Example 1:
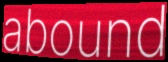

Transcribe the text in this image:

abound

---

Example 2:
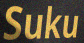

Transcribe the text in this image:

Suku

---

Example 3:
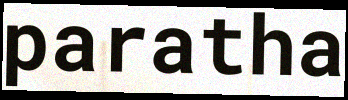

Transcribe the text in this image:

paratha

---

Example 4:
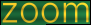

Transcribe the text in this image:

zoom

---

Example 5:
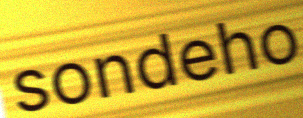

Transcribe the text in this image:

sondeho